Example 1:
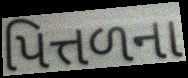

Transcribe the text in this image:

પિત્તળના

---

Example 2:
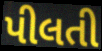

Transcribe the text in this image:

પીલતી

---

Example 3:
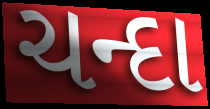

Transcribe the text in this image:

ચન્દા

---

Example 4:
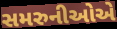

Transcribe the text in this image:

સમરુનીઓએ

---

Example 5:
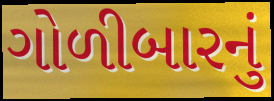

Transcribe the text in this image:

ગોળીબારનું